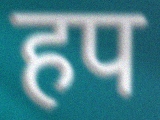
हप